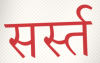
सर्स्त